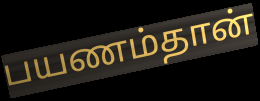
பயணம்தான்